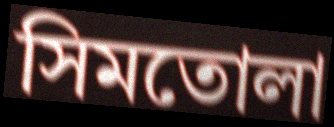
সিমতোলা